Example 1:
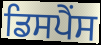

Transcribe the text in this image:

ਡਿਸਪੈਂਸ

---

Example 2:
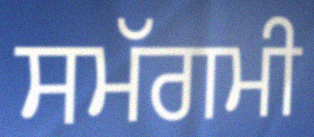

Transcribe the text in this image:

ਸਮੱਗਮੀ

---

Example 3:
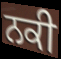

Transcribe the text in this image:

ਨਕੀ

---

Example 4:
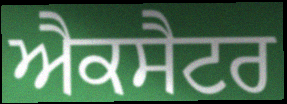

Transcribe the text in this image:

ਐਕਸੈਟਰ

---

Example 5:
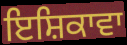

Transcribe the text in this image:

ਇਸ਼ਿਕਾਵਾ